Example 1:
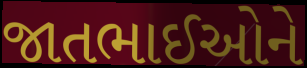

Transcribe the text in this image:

જાતભાઈઓને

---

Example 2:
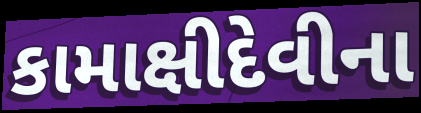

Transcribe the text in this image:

કામાક્ષીદેવીના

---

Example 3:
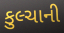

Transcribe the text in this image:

કુલ્ચાની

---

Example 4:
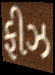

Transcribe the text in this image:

ફીઝ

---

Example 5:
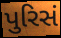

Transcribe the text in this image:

પુરિસં